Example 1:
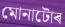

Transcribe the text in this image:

মোনাটোৰ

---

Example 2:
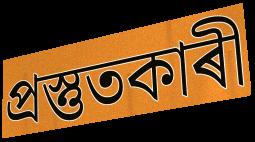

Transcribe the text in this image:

প্ৰস্তুতকাৰী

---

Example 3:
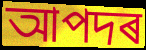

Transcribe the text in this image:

আপদৰ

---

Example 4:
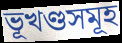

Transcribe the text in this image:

ভূখণ্ডসমূহ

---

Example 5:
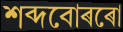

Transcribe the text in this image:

শব্দবোৰৰো